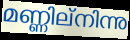
മണ്ണില്നിന്നു